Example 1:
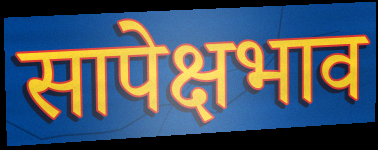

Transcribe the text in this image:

सापेक्षभाव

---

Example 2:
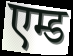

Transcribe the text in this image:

एम्ड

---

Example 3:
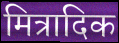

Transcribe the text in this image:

मित्रादिक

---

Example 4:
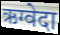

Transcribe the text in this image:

ऋग्वेदा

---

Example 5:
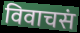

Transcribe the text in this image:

विवाचसं